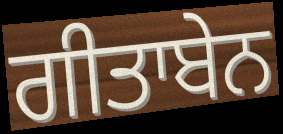
ਗੀਤਾਬੇਨ